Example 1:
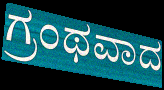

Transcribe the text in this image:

ಗ್ರಂಥವಾದ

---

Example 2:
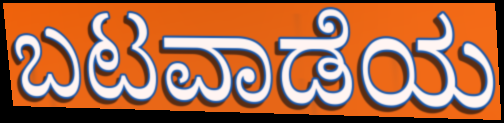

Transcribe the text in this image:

ಬಟವಾಡೆಯ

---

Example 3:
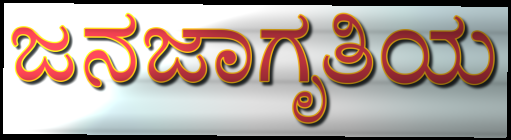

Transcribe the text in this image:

ಜನಜಾಗೃತಿಯ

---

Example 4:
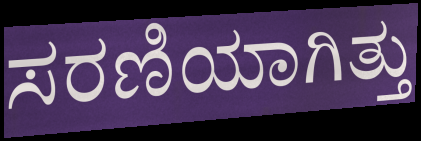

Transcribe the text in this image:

ಸರಣಿಯಾಗಿತ್ತು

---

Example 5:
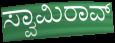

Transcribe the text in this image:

ಸ್ವಾಮಿರಾವ್